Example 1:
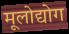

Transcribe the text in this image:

मूलोद्योग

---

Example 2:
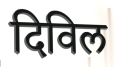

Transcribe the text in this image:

दिविल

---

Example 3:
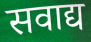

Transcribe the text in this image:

सवाद्य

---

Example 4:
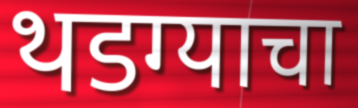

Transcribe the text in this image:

थडग्याचा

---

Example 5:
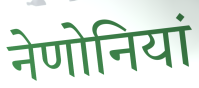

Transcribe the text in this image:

नेणोनियां